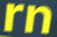
rn